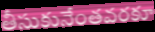
తీసుకునేంతవరకూ